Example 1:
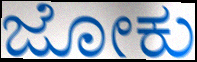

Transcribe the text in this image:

ಜೋಕು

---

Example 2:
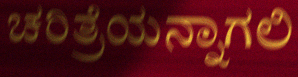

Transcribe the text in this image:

ಚರಿತ್ರೆಯನ್ನಾಗಲಿ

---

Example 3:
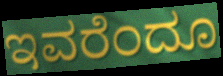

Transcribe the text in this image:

ಇವರೆಂದೂ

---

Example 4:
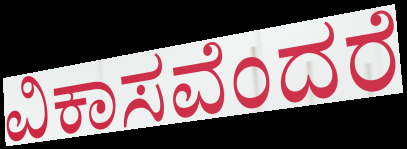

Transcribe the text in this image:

ವಿಕಾಸವೆಂದರೆ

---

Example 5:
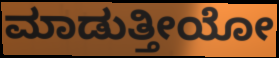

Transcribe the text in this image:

ಮಾಡುತ್ತೀಯೋ